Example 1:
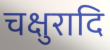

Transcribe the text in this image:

चक्षुरादि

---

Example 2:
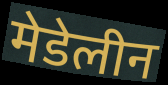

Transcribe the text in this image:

मेडेलीन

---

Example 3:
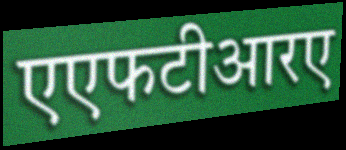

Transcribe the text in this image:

एएफटीआरए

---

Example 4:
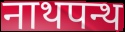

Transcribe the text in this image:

नाथपन्थ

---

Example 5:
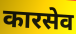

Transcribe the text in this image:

कारसेव